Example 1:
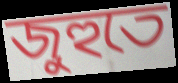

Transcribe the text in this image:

জুহুতে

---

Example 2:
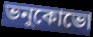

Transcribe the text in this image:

ভনুকোভো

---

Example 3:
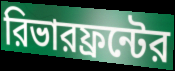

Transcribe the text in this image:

রিভারফ্রন্টের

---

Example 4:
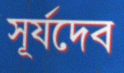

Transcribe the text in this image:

সূর্যদেব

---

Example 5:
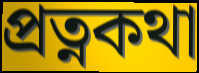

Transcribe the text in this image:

প্রত্নকথা